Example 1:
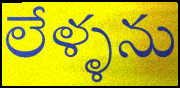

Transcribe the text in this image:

లేళ్ళను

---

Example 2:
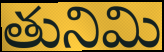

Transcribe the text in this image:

తునిమి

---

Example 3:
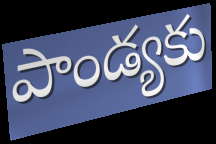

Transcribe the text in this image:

పాండ్యకు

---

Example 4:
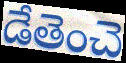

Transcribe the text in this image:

డేతెంచె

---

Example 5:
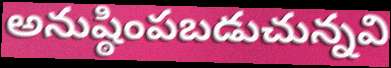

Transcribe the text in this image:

అనుష్ఠింపబడుచున్నవి